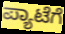
ಪ್ಯಾಟೆಗೆ